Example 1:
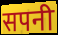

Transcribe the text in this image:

सपनी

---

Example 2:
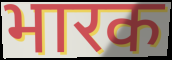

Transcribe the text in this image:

भारक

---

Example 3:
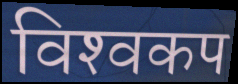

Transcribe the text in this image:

विश्‍वकप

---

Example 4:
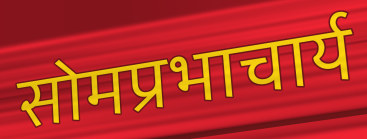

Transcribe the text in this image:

सोमप्रभाचार्य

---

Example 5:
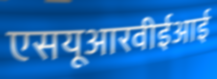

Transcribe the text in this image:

एसयूआरवीईआई